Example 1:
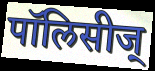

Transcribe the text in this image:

पॉलिसीज्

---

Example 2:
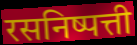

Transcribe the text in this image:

रसनिष्पत्ती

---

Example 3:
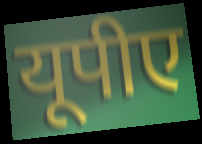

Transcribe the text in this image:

यूपीए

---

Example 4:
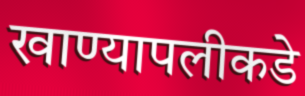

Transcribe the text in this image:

खाण्यापलीकडे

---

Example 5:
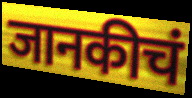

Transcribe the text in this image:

जानकीचं